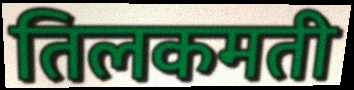
तिलकमती